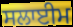
ਸਲਾਈਮ